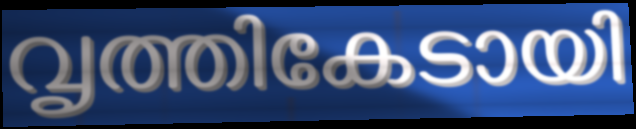
വൃത്തികേടായി